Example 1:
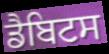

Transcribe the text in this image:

ਡੈਬਿਟਸ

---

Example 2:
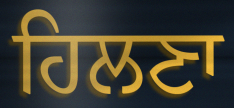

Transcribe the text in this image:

ਹਿਲਣਾ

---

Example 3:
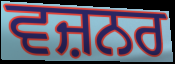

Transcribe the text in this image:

ਵਜ਼ਨਰ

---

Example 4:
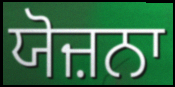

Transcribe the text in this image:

ਯੋਜ਼ਨਾ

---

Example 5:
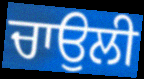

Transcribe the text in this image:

ਚਾਉਲੀ